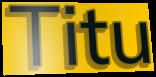
Titu